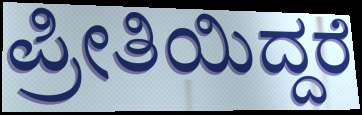
ಪ್ರೀತಿಯಿದ್ದರೆ